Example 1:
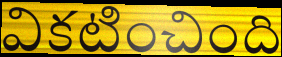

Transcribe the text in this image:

వికటించింది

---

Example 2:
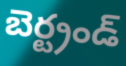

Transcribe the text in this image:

బెర్ట్రండ్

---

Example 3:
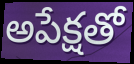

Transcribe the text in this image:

అపేక్షతో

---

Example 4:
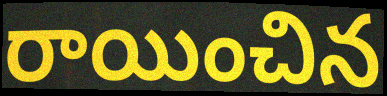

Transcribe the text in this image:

రాయించిన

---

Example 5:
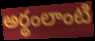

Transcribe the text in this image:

అర్థంలాంటి